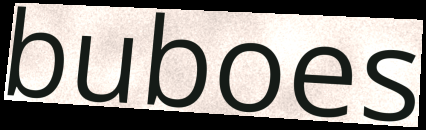
buboes